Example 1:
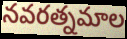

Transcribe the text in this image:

నవరత్నమాల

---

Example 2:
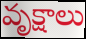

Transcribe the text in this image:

వృక్షాలు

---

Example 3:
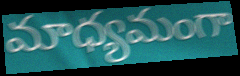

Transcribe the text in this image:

మాధ్యమంగా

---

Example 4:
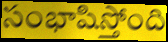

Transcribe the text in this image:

సంభాషిస్తోంది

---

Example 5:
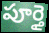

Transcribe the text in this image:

పూర్తై